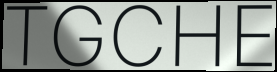
TGCHE